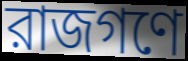
রাজগণে